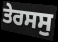
ਤੇਰਸਸੁ